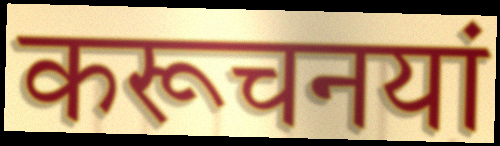
करूचनयां